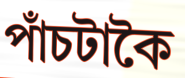
পাঁচটাকৈ